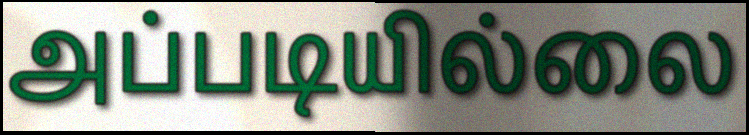
அப்படியில்லை